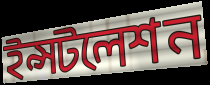
ইন্সটলেশন